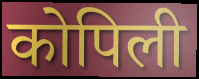
कोपिली